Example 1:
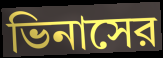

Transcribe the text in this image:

ভিনাসের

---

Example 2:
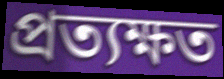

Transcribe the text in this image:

প্রত্যক্ষত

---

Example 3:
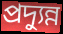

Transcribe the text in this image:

প্রদ্যুন্ন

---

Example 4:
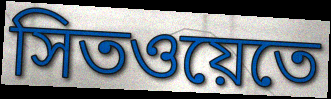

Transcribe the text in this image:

সিতওয়েতে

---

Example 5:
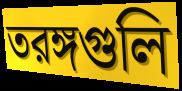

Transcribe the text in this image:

তরঙ্গগুলি